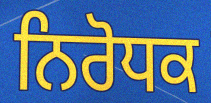
ਨਿਰੋਧਕ